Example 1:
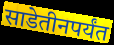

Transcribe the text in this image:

साडेतीनपर्यंत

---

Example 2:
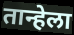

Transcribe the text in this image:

तान्हेला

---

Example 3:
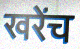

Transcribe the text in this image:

खरेंच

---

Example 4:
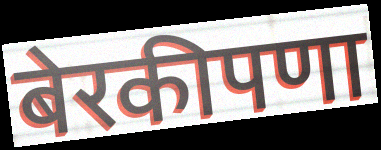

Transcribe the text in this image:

बेरकीपणा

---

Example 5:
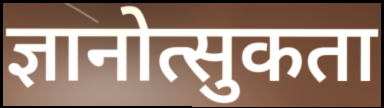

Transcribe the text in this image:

ज्ञानोत्सुकता